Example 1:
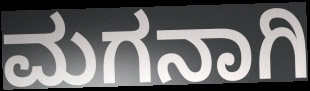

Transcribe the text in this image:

ಮಗನಾಗಿ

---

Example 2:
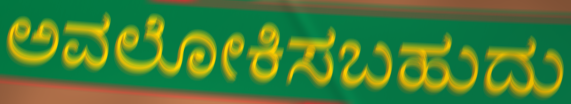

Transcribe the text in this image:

ಅವಲೋಕಿಸಬಹುದು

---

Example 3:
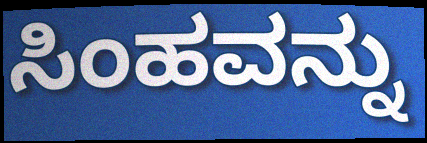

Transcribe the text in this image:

ಸಿಂಹವನ್ನು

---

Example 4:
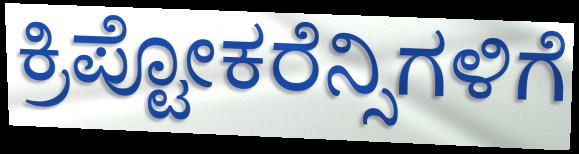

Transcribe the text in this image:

ಕ್ರಿಪ್ಟೋಕರೆನ್ಸಿಗಳಿಗೆ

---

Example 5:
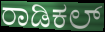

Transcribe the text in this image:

ರಾಡಿಕಲ್